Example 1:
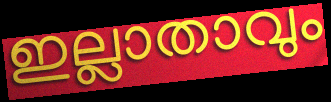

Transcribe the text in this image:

ഇല്ലാതാവും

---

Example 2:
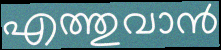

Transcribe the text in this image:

എത്തുവാൻ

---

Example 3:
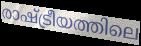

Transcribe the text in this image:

രാഷ്ട്രീയത്തിലെ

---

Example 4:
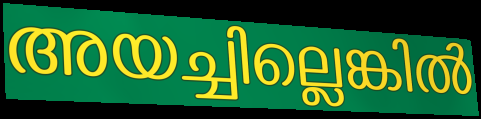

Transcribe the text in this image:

അയച്ചില്ലെങ്കിൽ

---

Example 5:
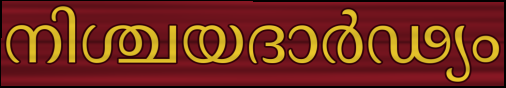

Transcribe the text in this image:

നിശ്ചയദാർഢ്യം